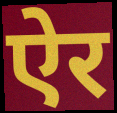
ऐर